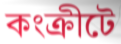
কংক্রীটে